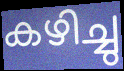
കഴിച്ചു